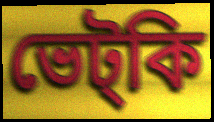
ভেট্কি